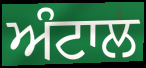
ਅੰਟਾਲ